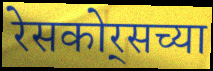
रेसकोर्सच्या